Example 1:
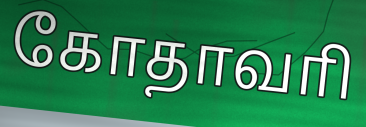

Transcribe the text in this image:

கோதாவரி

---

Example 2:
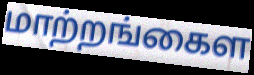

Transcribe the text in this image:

மாற்றங்கைள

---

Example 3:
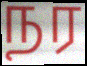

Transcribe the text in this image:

நர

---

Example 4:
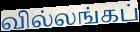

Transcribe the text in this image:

வில்லங்கப்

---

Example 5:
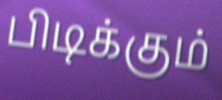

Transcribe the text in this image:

பிடிக்கும்